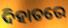
ଦିହାତରେ